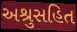
અશ્રુસહિત